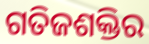
ଗତିଜଶକ୍ତିର